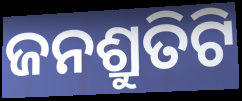
ଜନଶ୍ରୁତିଟି